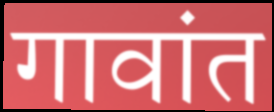
गावांत